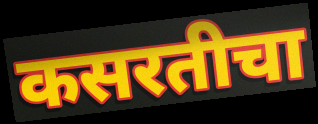
कसरतीचा